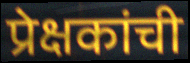
प्रेक्षकांची